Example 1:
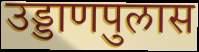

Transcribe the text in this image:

उड्डाणपुलास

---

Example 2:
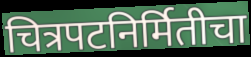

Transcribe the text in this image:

चित्रपटनिर्मितीचा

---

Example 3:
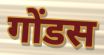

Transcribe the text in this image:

गोंडस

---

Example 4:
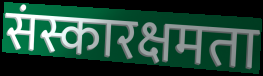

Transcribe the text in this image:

संस्कारक्षमता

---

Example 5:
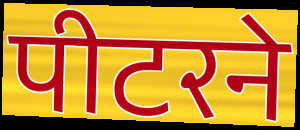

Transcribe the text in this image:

पीटरने